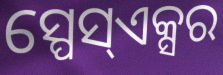
ସ୍ପେସ୍ଏକ୍ସର